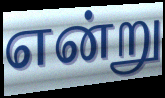
என்று